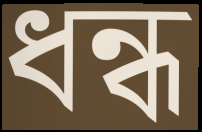
ধন্ধ